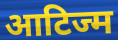
आटिज्म